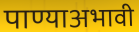
पाण्याअभावी